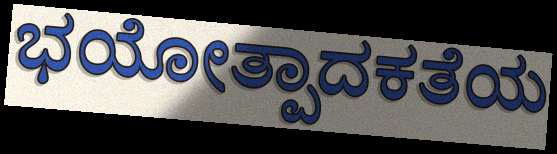
ಭಯೋತ್ಪಾದಕತೆಯ